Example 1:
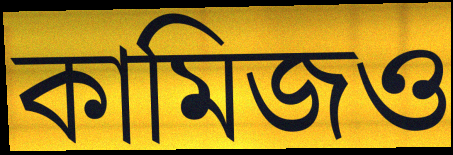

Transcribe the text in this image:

কামিজও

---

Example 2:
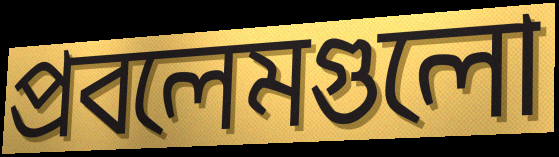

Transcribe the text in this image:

প্রবলেমগুলো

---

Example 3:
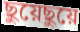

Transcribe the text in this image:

ছুয়েছুয়ে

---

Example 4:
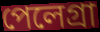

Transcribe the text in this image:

পেলেগ্রা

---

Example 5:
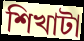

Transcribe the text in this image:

শিখাটা